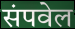
संपवेल